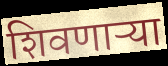
शिवणाऱ्या